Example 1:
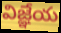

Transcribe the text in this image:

విజ్ఞేయ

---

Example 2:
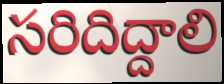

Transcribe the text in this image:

సరిదిద్దాలి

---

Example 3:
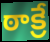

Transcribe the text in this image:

ఠాక్రే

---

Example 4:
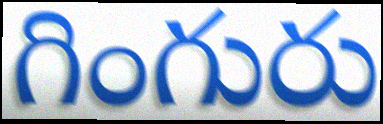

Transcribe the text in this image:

గింగురు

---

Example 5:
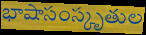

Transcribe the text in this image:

భాషాసంస్కృతుల